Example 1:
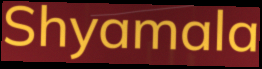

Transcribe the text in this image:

Shyamala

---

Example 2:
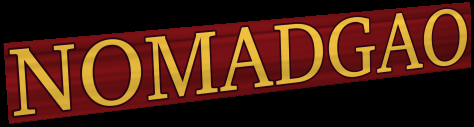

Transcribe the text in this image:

NOMADGAO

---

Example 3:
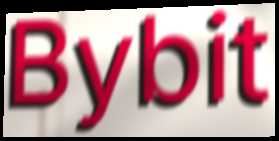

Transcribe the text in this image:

Bybit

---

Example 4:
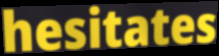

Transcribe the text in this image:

hesitates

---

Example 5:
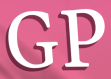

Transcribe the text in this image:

GP